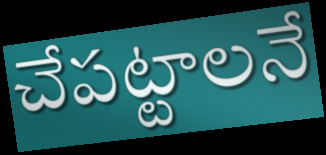
చేపట్టాలనే